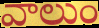
వాలుం